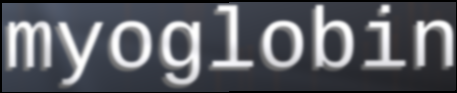
myoglobin